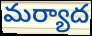
మర్యాద